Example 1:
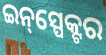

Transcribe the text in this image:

ଇନ୍‌ସ୍ପେକ୍ଟର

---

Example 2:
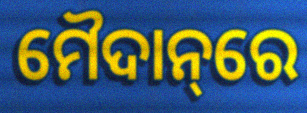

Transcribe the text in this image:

ମୈଦାନ୍‌ରେ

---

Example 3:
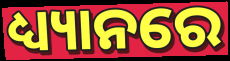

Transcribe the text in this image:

ଧ୍ୟ୍ୟାନରେ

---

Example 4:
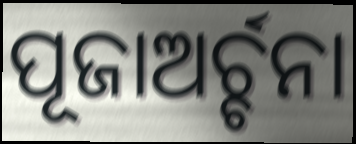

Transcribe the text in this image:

ପୂଜାଅର୍ଚ୍ଚନା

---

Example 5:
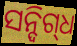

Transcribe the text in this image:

ସନ୍ଦିଗ୍‌ଧ